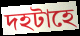
দহটাহে